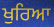
ਖੁਰਿਆ